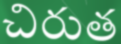
చిరుత